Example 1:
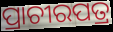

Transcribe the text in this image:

ପ୍ରାଚୀରପତ୍ର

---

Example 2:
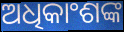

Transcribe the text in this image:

ଅଧିକାଂଶଙ୍କ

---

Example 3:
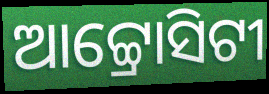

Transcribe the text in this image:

ଆଟ୍ଟ୍ରୋସିଟୀ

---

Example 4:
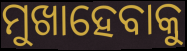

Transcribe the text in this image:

ମୁଖାହେବାକୁ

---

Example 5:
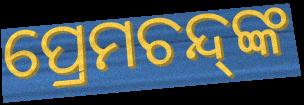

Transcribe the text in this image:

ପ୍ରେମଚନ୍ଦ୍‌ଙ୍କ